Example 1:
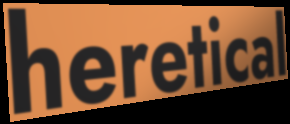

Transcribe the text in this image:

heretical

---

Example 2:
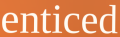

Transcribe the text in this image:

enticed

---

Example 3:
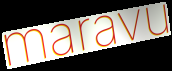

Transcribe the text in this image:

maravu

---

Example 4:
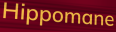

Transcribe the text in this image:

Hippomane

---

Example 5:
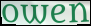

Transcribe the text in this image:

owen